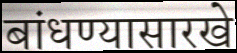
बांधण्यासारखे